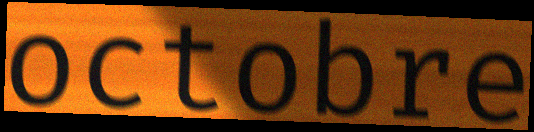
octobre